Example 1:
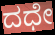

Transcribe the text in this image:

ದಧೇ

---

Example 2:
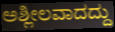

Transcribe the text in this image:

ಅಶ್ಲೀಲವಾದದ್ದು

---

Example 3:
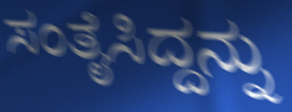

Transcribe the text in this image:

ಸಂತೈಸಿದ್ದನ್ನು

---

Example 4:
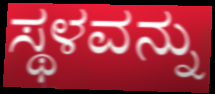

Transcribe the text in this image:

ಸ್ಥಳವನ್ನು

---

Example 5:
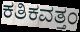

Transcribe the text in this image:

ಕತಿಕವತ್ತಂ